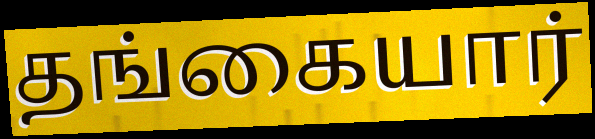
தங்கையார்